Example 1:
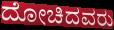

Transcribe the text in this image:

ದೋಚಿದವರು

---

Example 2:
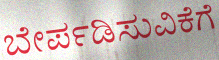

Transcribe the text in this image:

ಬೇರ್ಪಡಿಸುವಿಕೆಗೆ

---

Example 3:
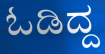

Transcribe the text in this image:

ಓಡಿದ್ದ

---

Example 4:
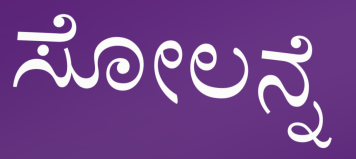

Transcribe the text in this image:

ಸೋಲನ್ನೆ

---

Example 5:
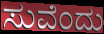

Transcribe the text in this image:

ಸುವೆಂದು